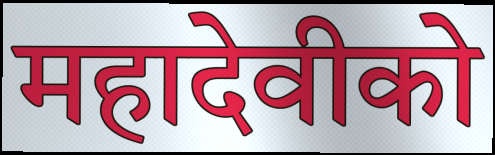
महादेवीको